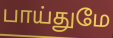
பாய்துமே